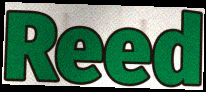
Reed